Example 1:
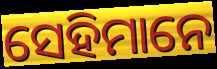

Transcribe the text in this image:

ସେହିମାନେ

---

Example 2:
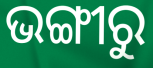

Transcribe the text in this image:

ଭଙ୍ଗୀରୁ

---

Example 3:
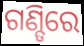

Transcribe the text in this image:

ଗଣ୍ଡିରେ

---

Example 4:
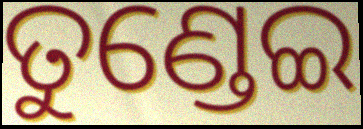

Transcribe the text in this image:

ତୁଣ୍ଡେଇ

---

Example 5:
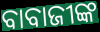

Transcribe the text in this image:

ବାବାଜୀଙ୍କ